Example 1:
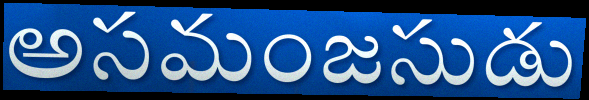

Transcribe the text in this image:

అసమంజసుడు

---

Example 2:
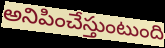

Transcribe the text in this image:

అనిపించేస్తుంటుంది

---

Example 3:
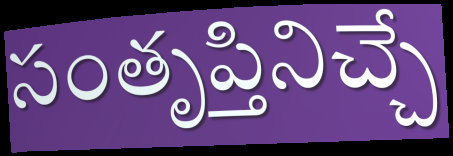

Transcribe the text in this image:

సంతృప్తినిచ్చే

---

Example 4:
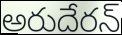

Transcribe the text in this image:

అరుదేరన్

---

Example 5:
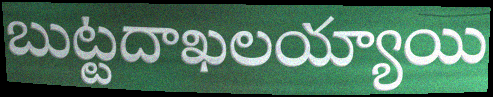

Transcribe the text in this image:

బుట్టదాఖలయ్యాయి